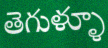
తెగుళ్ళూ